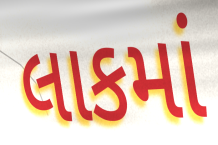
લાકમાં